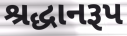
શ્રદ્ધાનરૂપ